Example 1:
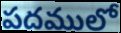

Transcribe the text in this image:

పదములో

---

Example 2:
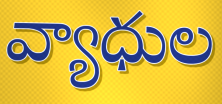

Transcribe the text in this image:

వ్యాధుల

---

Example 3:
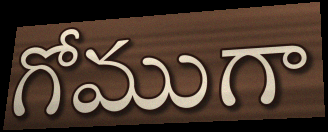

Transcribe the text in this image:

గోముగా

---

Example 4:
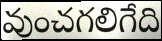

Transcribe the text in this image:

వుంచగలిగేది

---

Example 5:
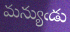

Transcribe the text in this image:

మన్యుఁడు